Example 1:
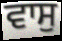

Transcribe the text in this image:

ਵਾਸੁ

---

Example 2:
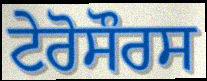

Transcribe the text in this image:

ਟੇਰੋਸੌਰਸ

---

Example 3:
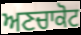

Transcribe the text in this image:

ਅਣਚਾਕੋਟ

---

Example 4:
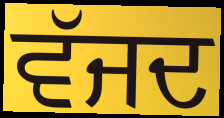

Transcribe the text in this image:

ਵੱਜਦ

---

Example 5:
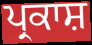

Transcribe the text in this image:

ਪ੍ਰਕਾਸ਼